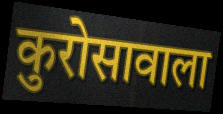
कुरोसावाला